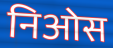
निओस